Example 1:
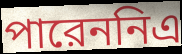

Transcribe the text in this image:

পারেননিএ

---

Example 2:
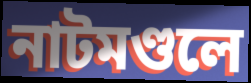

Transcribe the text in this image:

নাটমণ্ডলে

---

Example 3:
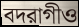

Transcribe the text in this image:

বদরাগীও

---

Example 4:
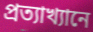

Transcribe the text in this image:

প্রত্যাখ্যানে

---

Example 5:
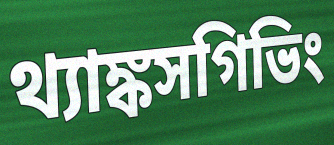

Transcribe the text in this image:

থ্যাঙ্কসগিভিং